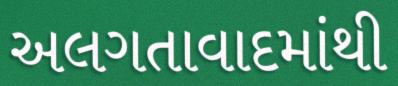
અલગતાવાદમાંથી